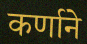
कर्णाने